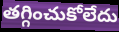
తగ్గించుకోలేదు